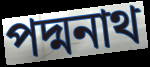
পদ্মনাথ